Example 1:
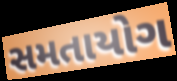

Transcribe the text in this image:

સમતાયોગ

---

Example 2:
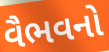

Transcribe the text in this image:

વૈભવનો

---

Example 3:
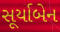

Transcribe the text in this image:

સૂર્યાબેન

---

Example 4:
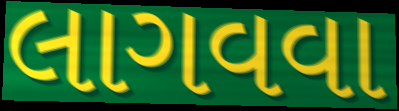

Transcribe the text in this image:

લાગવવા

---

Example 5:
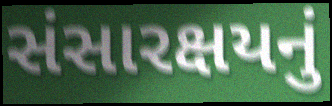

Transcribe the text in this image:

સંસારક્ષયનું